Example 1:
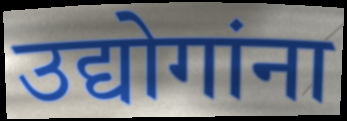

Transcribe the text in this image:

उद्योगांना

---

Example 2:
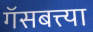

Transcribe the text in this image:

गॅसबत्त्या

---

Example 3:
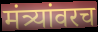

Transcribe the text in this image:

मंत्र्यांवरच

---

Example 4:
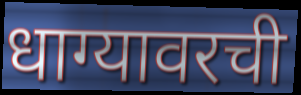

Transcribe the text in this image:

धाग्यावरची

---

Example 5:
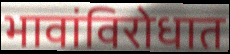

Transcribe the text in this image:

भावांविरोधात